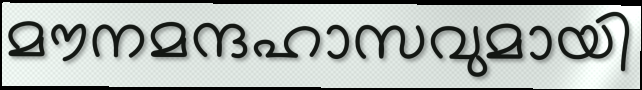
മൗനമന്ദഹാസവുമായി